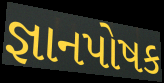
જ્ઞાનપોષક